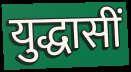
युद्धासीं